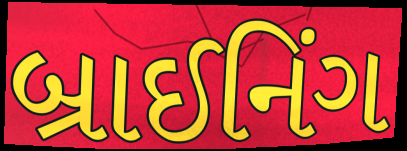
બ્રાઈનિંગ